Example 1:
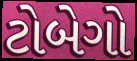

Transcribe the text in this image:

ટોબેગો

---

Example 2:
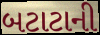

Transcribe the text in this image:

બટાટાની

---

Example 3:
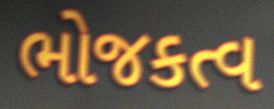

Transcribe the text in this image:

ભોજકત્વ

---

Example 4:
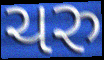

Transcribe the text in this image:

ચરુ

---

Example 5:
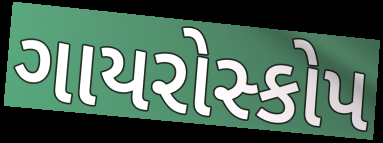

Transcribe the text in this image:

ગાયરોસ્કોપ